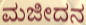
ಮಜೀದನ